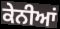
ਕੇਨੀਆਂ